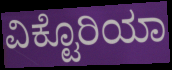
ವಿಕ್ಟೊರಿಯಾ